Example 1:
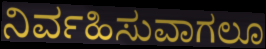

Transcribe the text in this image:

ನಿರ್ವಹಿಸುವಾಗಲೂ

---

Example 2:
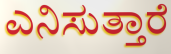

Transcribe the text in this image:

ಎನಿಸುತ್ತಾರೆ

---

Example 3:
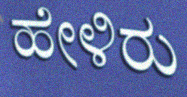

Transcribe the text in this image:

ಹೇಳಿರು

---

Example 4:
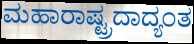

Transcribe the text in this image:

ಮಹಾರಾಷ್ಟ್ರದಾದ್ಯಂತ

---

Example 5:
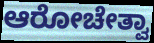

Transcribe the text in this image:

ಆರೋಚೇತ್ವಾ